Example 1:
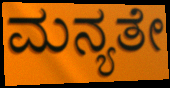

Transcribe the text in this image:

ಮನ್ಯತೇ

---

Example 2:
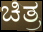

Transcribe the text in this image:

ಚಿತ್ರ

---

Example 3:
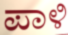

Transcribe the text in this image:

ಪಾಳಿ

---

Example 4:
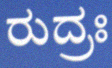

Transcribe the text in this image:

ರುದ್ರಃ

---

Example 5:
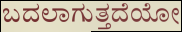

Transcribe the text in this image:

ಬದಲಾಗುತ್ತದೆಯೋ